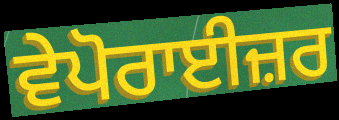
ਵੇਪੋਰਾਈਜ਼ਰ